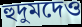
হুদুমদেও